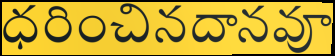
ధరించినదానవూ